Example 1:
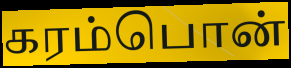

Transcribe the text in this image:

கரம்பொன்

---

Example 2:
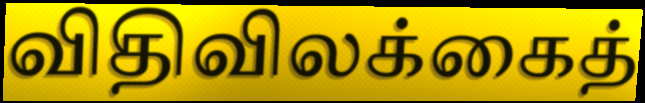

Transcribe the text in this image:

விதிவிலக்கைத்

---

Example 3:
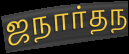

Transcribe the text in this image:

ஜநார்தந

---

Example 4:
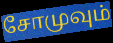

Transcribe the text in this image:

சோமுவும்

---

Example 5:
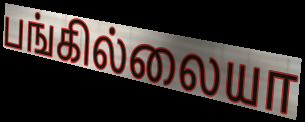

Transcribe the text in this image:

பங்கில்லையா